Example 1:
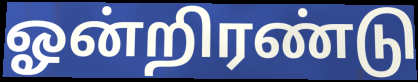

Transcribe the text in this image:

ஓன்றிரண்டு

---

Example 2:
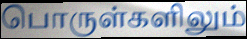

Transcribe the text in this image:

பொருள்களிலும்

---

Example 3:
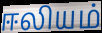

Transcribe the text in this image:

ஈலியம்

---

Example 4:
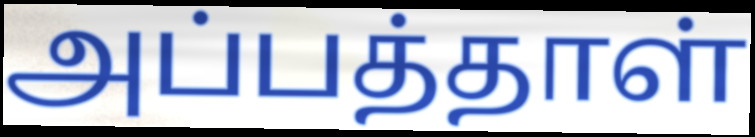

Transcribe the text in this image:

அப்பத்தாள்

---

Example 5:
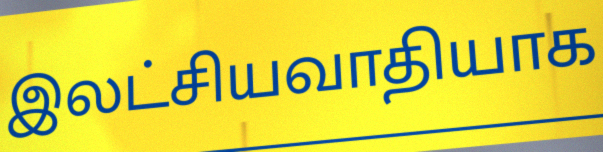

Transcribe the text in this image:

இலட்சியவாதியாக